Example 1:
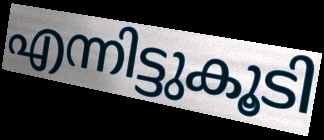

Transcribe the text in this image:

എന്നിട്ടുകൂടി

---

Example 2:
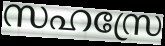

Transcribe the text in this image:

സഹസ്രേ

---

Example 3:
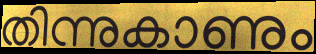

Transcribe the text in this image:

തിന്നുകാണും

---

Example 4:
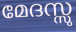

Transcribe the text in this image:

മേദസ്സു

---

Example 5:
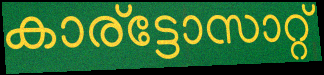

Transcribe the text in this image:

കാര്ട്ടോസാറ്റ്